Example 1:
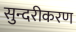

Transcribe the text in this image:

सुन्दरीकरण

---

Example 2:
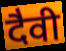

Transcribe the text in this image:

दैवी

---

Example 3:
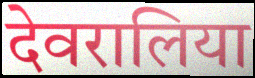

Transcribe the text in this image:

देवरालिया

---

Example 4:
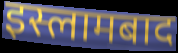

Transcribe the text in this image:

इस्लामबाद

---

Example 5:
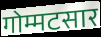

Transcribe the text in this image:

गोम्मटसार